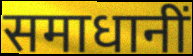
समाधानीं